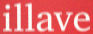
illave